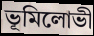
ভূমিলোভী